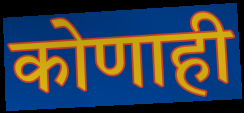
कोणाही